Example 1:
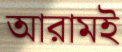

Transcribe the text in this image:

আরামই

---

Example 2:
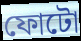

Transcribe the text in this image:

ফোটো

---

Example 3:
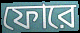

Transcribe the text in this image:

ফোরে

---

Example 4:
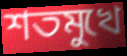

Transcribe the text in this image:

শতমুখে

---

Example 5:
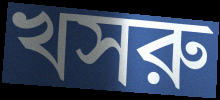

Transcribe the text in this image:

খসরু